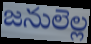
జనులెల్ల